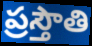
ప్రస్తౌతి